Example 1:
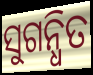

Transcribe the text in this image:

ସୁଗନ୍ଧିତ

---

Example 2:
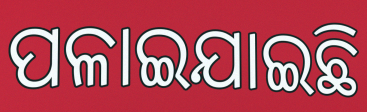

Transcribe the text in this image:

ପଳାଇଯାଇଛି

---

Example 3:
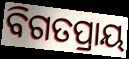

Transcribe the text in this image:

ବିଗତପ୍ରାୟ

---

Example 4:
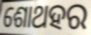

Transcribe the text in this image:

ଶୋଥହର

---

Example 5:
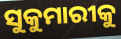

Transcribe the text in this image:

ସୁକୁମାରୀକୁ